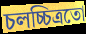
চলচ্চিত্ৰতো